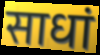
साधां